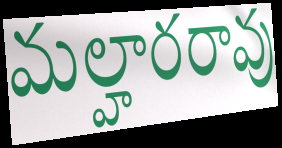
మల్హారరావు